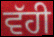
ਵੱਹੀ